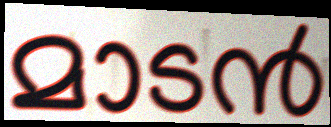
മാടൻ